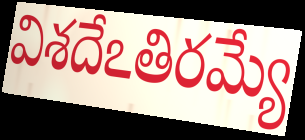
విశదేఽతిరమ్యే